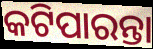
କଟିପାରନ୍ତା